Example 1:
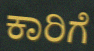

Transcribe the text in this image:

ಕಾರಿಗೆ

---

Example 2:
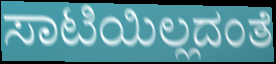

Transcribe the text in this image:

ಸಾಟಿಯಿಲ್ಲದಂತೆ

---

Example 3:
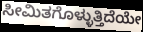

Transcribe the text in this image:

ಸೀಮಿತಗೊಳ್ಳುತ್ತಿದೆಯೇ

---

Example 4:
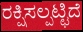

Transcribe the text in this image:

ರಕ್ಷಿಸಲ್ಪಟ್ಟಿದೆ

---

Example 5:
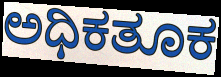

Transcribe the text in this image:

ಅಧಿಕತೂಕ